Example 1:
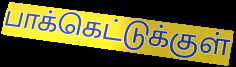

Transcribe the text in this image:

பாக்கெட்டுக்குள்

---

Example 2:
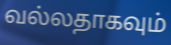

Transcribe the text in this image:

வல்லதாகவும்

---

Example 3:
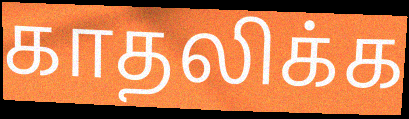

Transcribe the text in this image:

காதலிக்க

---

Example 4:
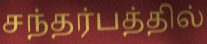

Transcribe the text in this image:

சந்தர்பத்தில்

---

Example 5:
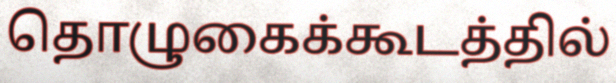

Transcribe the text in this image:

தொழுகைக்கூடத்தில்